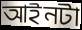
আইনটা